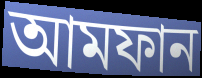
আমফান